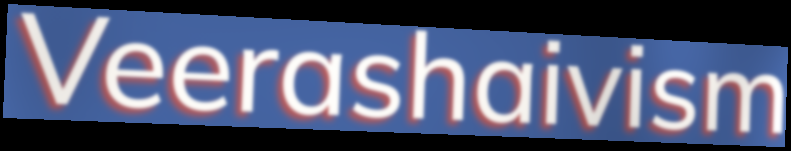
Veerashaivism